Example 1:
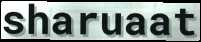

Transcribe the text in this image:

sharuaat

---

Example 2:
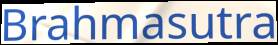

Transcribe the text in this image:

Brahmasutra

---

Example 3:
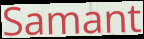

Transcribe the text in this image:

Samant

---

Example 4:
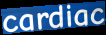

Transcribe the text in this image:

cardiac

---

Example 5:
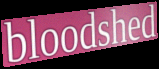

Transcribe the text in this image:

bloodshed